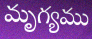
మృగ్యము